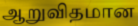
ஆறுவிதமான